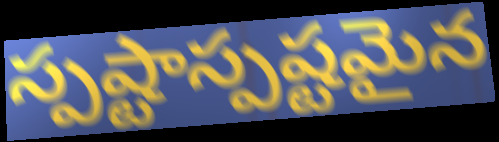
స్పష్టాస్పష్టమైన